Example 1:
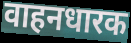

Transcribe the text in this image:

वाहनधारक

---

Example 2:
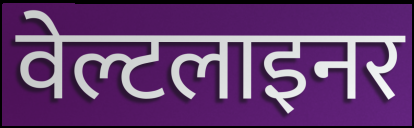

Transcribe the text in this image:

वेल्टलाइनर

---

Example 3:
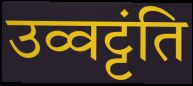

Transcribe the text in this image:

उव्वट्टंति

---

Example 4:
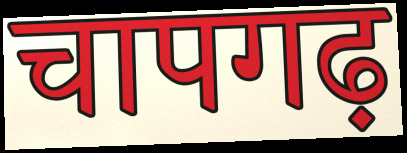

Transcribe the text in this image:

चापगढ़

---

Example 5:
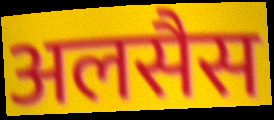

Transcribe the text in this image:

अलसैस